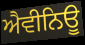
ਐਵੀਨਿਊ